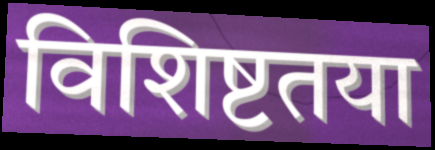
विशिष्टतया